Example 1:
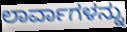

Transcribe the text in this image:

ಲಾರ್ವಾಗಳನ್ನು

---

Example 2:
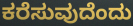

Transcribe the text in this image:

ಕರೆಸುವುದೆಂದು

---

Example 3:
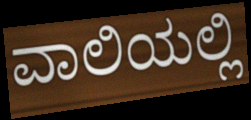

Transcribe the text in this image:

ವಾಲಿಯಲ್ಲಿ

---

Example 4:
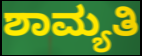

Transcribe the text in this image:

ಶಾಮ್ಯತಿ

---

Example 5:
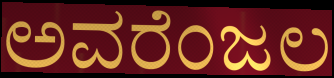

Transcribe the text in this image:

ಅವರೆಂಜಲ